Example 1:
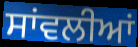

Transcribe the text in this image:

ਸਾਂਵਲੀਆਂ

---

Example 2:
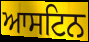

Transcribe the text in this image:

ਆਸਟਿਨ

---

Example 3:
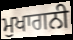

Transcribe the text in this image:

ਮੁਖਾਗਨੀ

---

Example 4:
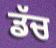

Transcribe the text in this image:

ਡੱਚ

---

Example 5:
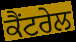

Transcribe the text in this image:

ਕੈਂਟਰੇਲ